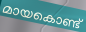
മായകൊണ്ട്